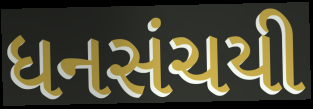
ધનસંચયી